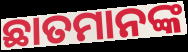
ଛାତମାନଙ୍କ